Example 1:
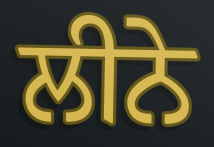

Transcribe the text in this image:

ਲੀਨੇ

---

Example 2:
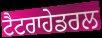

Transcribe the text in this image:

ਟੈਟਰਾਹੇਡਰਲ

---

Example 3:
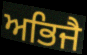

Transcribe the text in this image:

ਅਭਿਜੈ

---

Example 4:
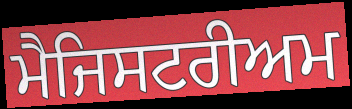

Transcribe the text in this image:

ਮੈਜਿਸਟਰੀਅਮ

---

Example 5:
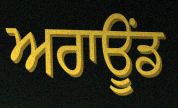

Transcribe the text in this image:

ਅਰਾਊਂਡ